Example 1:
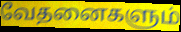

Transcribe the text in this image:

வேதனைகளும்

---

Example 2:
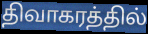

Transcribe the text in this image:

திவாகரத்தில்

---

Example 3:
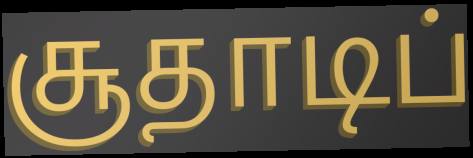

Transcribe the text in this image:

சூதாடிப்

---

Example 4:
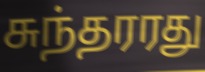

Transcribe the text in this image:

சுந்தரரது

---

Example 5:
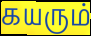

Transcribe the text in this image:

கயரும்